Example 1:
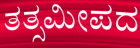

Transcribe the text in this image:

ತತ್ಸಮೀಪದ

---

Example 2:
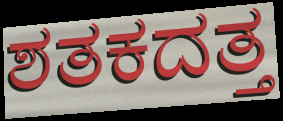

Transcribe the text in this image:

ಶತಕದತ್ತ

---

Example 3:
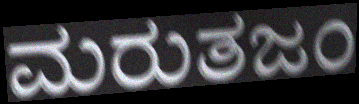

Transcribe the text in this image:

ಮರುತಜಂ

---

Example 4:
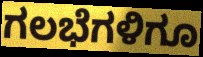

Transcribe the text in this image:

ಗಲಭೆಗಳಿಗೂ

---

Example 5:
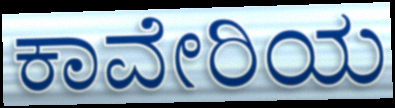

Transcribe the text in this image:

ಕಾವೇರಿಯ